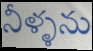
నీళ్ళను